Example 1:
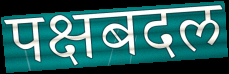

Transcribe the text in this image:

पक्षबदल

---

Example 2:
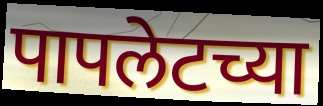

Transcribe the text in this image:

पापलेटच्या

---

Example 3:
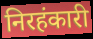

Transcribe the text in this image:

निरहंकारी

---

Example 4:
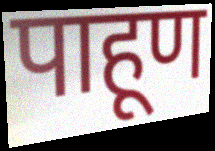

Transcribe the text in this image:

पाहूण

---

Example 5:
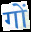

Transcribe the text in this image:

गों